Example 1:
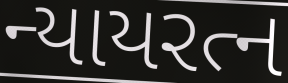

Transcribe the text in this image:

ન્યાયરત્ન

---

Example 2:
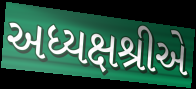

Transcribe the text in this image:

અધ્યક્ષશ્રીએ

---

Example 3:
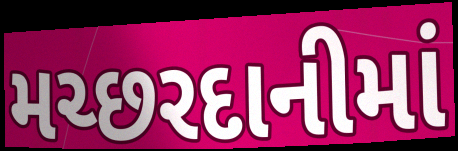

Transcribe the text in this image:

મચ્છરદાનીમાં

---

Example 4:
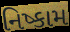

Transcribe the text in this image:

નિષ્કામ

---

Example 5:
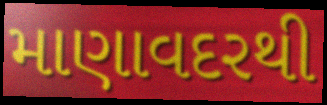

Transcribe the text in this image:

માણાવદરથી